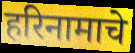
हरिनामाचे